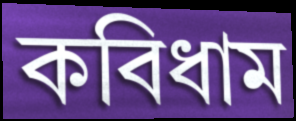
কবিধাম